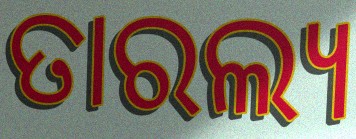
ତାରଲ୍ୟ